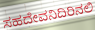
ಸಹದೇವನಿದಿರಿನಲಿ